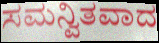
ಸಮನ್ವಿತವಾದ